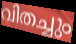
വിതച്ചും